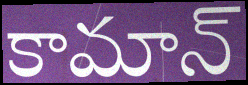
కామాన్